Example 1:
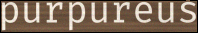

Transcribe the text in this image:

purpureus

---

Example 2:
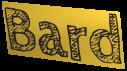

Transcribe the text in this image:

Bard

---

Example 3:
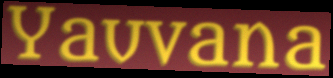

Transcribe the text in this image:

Yauvana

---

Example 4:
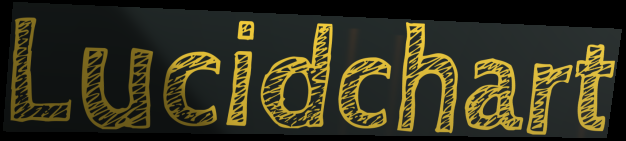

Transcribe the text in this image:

Lucidchart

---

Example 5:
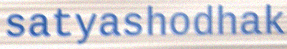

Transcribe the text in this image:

satyashodhak